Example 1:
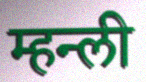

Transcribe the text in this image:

म्हन्ली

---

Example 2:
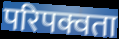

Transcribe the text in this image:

परिपक्वता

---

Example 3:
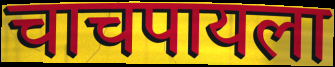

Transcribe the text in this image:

चाचपायला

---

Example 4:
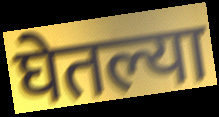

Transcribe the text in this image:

घेतल्या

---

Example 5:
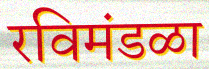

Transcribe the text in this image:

रविमंडळा